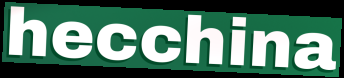
hecchina